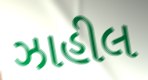
ઝાહીલ